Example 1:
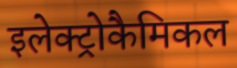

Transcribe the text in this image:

इलेक्ट्रोकैमिकल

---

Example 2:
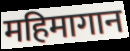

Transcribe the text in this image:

महिमागान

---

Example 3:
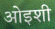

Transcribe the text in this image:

ओइशी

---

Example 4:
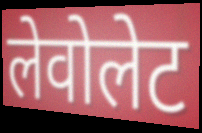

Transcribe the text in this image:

लेवोलेट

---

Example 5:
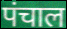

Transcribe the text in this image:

पंचाल